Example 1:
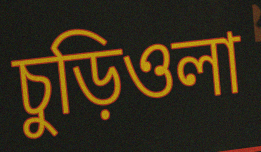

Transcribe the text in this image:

চুড়িওলা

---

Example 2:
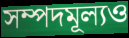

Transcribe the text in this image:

সম্পদমূল্যও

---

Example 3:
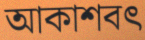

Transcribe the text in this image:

আকাশবৎ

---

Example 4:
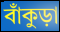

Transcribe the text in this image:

বাঁকুড়া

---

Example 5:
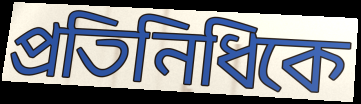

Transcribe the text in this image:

প্রতিনিধিকে